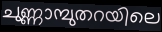
ചുണ്ണാമ്പുതറയിലെ